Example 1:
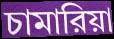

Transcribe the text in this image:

চামারিয়া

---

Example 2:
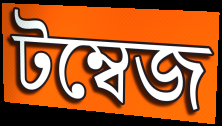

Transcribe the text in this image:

টম্বেজ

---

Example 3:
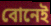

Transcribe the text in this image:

বোনেই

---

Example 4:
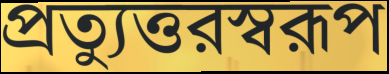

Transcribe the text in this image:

প্রত্যুত্তরস্বরূপ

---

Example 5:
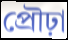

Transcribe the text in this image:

প্রৌঢ়া